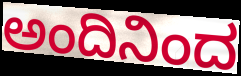
ಅಂದಿನಿಂದ